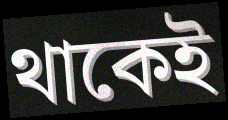
থাকেই